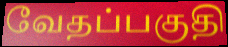
வேதப்பகுதி